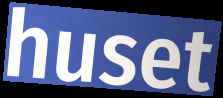
huset